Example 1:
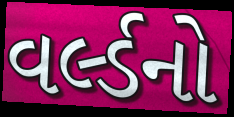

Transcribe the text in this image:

વર્લ્ડનો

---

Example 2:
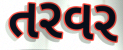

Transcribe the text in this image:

તરવર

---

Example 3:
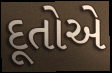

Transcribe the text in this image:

દૂતોએ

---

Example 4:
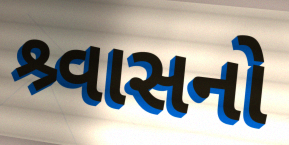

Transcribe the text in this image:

શ્ર્વાસનો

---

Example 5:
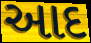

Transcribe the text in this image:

આદ